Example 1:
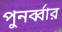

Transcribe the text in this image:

পুনর্ব্বার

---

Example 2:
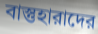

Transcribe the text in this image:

বাস্তুহারাদের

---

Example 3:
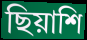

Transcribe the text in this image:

ছিয়াশি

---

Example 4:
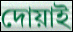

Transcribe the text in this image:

দোয়াই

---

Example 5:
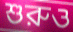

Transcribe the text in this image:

শুরুও